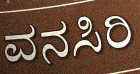
ವನಸಿರಿ